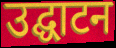
उद्घाटन